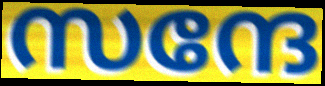
സന്ദേ